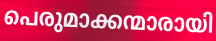
പെരുമാക്കന്മാരായി